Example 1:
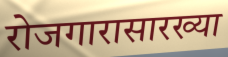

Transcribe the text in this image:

रोजगारासारख्या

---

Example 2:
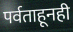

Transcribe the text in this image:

पर्वताहूनही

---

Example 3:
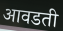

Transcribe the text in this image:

आवडती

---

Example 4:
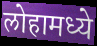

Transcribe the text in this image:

लोहामध्ये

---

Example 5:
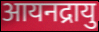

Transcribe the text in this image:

आयनद्रायु